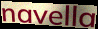
navella